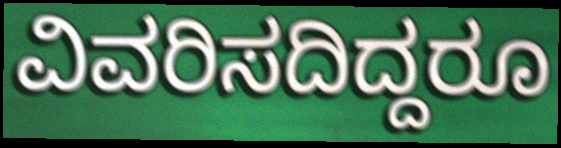
ವಿವರಿಸದಿದ್ದರೂ